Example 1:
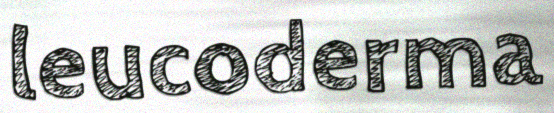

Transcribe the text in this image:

leucoderma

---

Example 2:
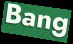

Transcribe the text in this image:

Bang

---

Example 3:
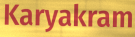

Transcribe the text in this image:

Karyakram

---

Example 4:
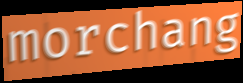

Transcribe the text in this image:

morchang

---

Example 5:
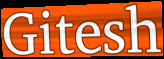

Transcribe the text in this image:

Gitesh